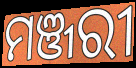
ମଞ୍ଜରୀ